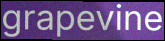
grapevine